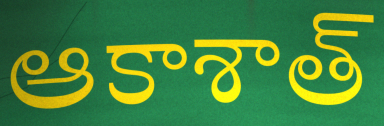
ఆకాశాత్